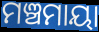
ମଞ୍ଚମାୟା